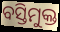
ବସ୍ତିମୁକ୍ତ